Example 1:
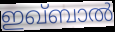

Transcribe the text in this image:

ഇഖ്ബാൽ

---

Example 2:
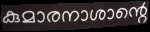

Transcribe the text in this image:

കുമാരനാശാന്റെ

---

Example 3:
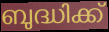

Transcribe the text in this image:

ബുദ്ധിക്ക്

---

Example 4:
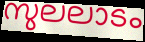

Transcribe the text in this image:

സുലലാടം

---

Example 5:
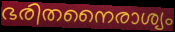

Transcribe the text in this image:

ഭരിതനൈരാശ്യം